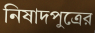
নিষাদপুত্রের